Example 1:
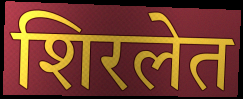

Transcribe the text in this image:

शिरलेत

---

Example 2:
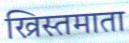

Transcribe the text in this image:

ख्रिस्तमाता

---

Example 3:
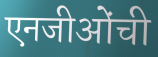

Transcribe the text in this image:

एनजीओंची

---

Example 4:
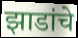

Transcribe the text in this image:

झाडांचे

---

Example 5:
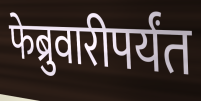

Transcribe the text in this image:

फेब्रुवारीपर्यंत